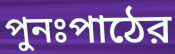
পুনঃপাঠের